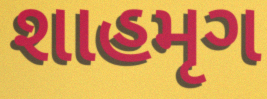
શાહમૃગ